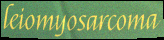
leiomyosarcoma